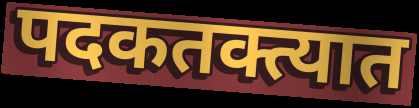
पदकतक्त्यात